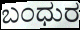
ಬಂಧುರ